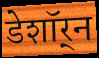
डेशॉर्न